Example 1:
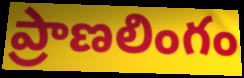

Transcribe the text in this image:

ప్రాణలింగం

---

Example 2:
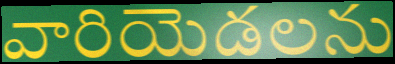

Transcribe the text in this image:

వారియెడలను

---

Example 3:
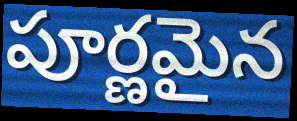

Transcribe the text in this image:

పూర్ణమైన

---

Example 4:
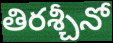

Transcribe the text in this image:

తిరశ్చీనో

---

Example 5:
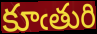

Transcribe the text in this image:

కూఁతురి